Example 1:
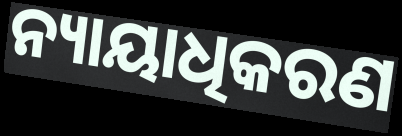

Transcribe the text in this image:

ନ୍ୟାୟାଧିକରଣ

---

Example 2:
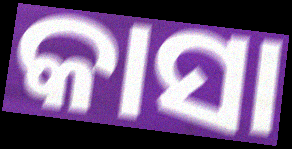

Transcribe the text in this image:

କାସା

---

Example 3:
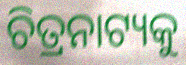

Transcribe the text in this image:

ଚିତ୍ରନାଟ୍ୟକୁ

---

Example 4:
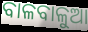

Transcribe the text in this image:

ବାଳବାଳୁଆ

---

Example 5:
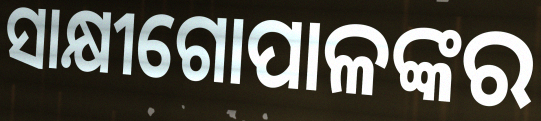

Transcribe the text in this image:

ସାକ୍ଷୀଗୋପାଳଙ୍କର